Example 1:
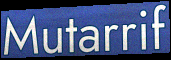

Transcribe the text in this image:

Mutarrif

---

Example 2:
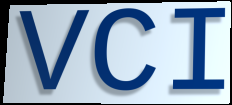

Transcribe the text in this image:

VCI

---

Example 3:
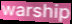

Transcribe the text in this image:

warship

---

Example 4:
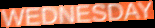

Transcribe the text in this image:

WEDNESDAY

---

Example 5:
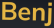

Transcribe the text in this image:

Benj